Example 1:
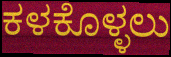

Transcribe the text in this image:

ಕಳಕೊಳ್ಳಲು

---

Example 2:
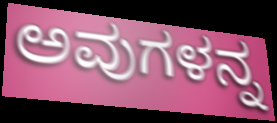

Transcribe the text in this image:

ಅವುಗಳನ್ನ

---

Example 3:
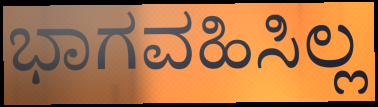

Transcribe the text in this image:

ಭಾಗವಹಿಸಿಲ್ಲ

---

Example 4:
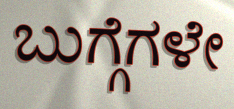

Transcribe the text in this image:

ಬುಗ್ಗೆಗಳೇ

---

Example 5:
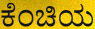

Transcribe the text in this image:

ಕೆಂಚಿಯ